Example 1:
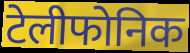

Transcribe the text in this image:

टेलीफोनिक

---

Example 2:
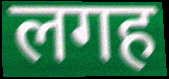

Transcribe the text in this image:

लगह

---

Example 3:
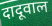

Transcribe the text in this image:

दादूवाल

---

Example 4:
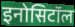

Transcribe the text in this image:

इनोसिटॉल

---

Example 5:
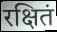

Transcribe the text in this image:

रक्षितं